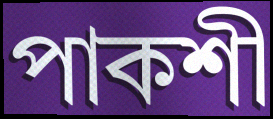
পাকশী